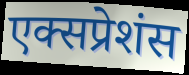
एक्सप्रेशंस